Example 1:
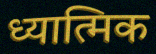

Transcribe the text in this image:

ध्यात्मिक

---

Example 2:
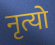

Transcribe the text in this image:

नृत्यो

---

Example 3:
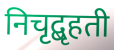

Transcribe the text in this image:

निचृद्बृहती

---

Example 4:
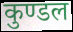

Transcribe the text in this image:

कुण्डल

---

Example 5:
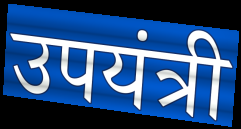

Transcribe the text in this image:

उपयंत्री